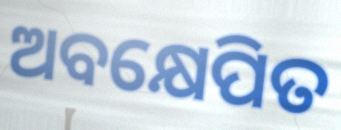
ଅବକ୍ଷେପିତ